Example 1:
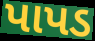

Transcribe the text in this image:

પાપડ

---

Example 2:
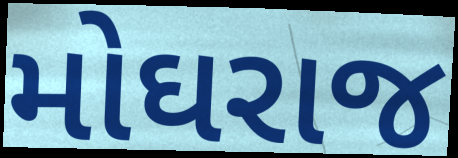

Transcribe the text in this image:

મોઘરાજ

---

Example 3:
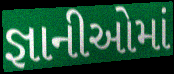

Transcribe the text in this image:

જ્ઞાનીઓમાં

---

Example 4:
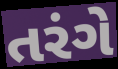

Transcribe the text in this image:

તરંગે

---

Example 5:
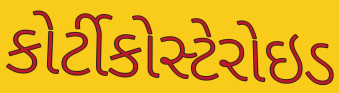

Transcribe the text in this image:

કોર્ટીકોસ્ટેરોઇડ